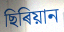
ছিৰিয়ান